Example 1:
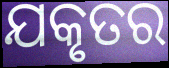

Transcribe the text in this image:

ଯକୃତର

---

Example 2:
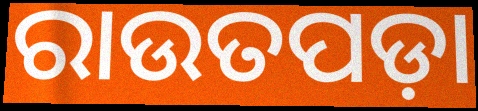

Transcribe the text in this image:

ରାଉତପଡ଼ା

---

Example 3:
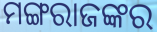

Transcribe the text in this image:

ମଙ୍ଗରାଜଙ୍କର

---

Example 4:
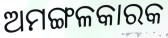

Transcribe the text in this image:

ଅମଙ୍ଗଳକାରକ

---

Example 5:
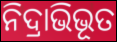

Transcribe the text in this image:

ନିଦ୍ରାଭିଭୂତ